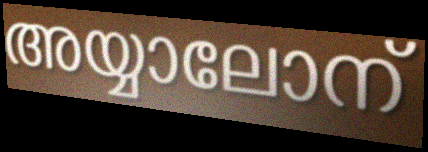
അയ്യാലോന്